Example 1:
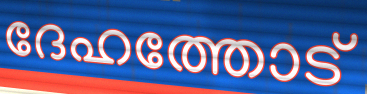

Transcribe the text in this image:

ദേഹത്തോട്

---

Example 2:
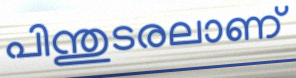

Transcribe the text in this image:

പിന്തുടരലാണ്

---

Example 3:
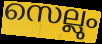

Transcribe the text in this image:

സെല്ലും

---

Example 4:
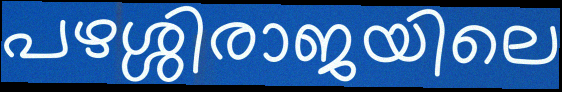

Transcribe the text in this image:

പഴശ്ശിരാജയിലെ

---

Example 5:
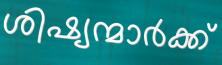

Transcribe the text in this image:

ശിഷ്യന്മാർക്ക്